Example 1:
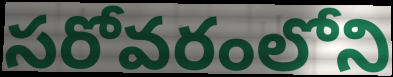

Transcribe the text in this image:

సరోవరంలోని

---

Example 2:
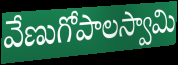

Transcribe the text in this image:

వేణుగోపాలస్వామి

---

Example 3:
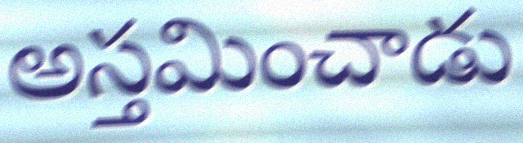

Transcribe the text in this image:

అస్తమించాడు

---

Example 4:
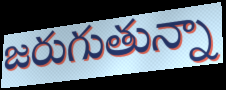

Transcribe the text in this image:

జరుగుతున్నా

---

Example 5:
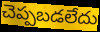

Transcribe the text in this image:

చెప్పబడలేదు